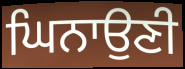
ਘਿਨਾਉਣੀ